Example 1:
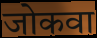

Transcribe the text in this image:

जोकवा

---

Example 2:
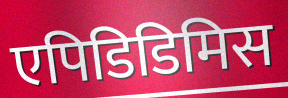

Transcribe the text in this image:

एपिडिडिमिस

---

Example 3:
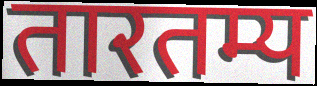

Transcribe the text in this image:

तारतम्य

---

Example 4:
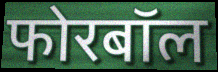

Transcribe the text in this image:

फोरबॉल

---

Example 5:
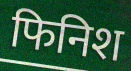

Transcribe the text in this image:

फिनिश